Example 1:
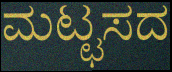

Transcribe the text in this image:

ಮಟ್ಟಸದ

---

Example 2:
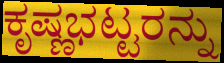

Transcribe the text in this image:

ಕೃಷ್ಣಭಟ್ಟರನ್ನು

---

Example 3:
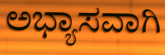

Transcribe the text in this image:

ಅಭ್ಯಾಸವಾಗಿ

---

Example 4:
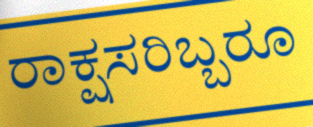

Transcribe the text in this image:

ರಾಕ್ಷಸರಿಬ್ಬರೂ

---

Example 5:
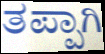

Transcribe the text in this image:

ತಪ್ಪಾಗಿ